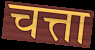
चत्ता